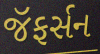
જૅફર્સન